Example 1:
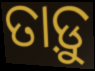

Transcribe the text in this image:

ତାଡ଼ୁ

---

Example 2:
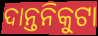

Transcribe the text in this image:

ଦାନ୍ତନିକୁଟା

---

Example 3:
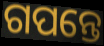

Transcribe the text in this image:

ଗପନ୍ତେ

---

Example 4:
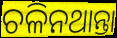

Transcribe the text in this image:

ଚଳିନଥାନ୍ତା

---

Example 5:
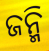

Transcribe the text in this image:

ଜନ୍ମି